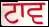
ਟਾਵ